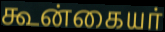
கூன்கையர்